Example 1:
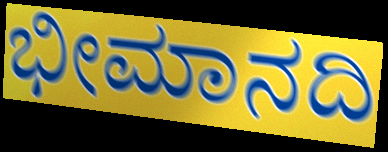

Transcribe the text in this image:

ಭೀಮಾನದಿ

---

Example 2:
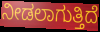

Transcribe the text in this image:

ನೀಡಲಾಗುತ್ತಿದೆ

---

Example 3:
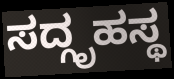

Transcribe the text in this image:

ಸದ್ಗೃಹಸ್ಥ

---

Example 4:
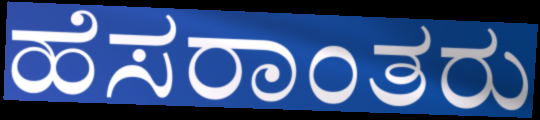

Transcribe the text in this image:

ಹೆಸರಾಂತರು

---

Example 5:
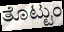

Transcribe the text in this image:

ತೊಟ್ಟುಂ